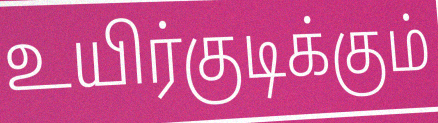
உயிர்குடிக்கும்